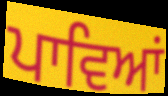
ਪਾਵਿਆਂ